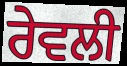
ਰੇਵਲੀ